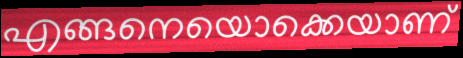
എങ്ങനെയൊക്കെയാണ്